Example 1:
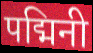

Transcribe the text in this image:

पद्मिनी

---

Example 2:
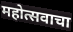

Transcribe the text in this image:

महोत्सवाचा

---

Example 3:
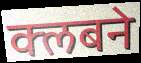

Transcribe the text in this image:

क्‍लबने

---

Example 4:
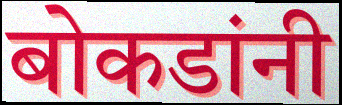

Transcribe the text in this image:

बोकडांनी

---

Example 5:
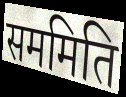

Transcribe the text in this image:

सममिति